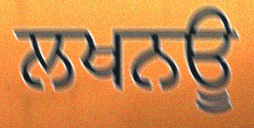
ਲਖਨਊ